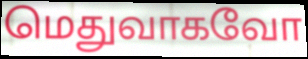
மெதுவாகவோ